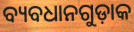
ବ୍ୟବଧାନଗୁଡ଼ାକ